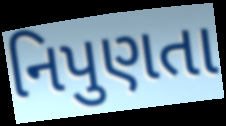
નિપુણતા